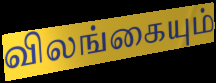
விலங்கையும்